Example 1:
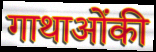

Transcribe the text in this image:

गाथाओंकी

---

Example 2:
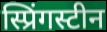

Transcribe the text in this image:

स्प्रिंगस्टीन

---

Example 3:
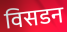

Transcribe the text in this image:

विसडन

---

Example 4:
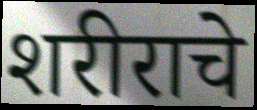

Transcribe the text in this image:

शरीराचे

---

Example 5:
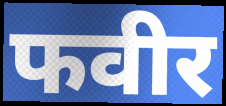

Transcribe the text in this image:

फवीर